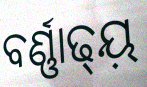
ବର୍ଣ୍ଣାଢ୍ୟ଼